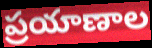
ప్రయాణాల